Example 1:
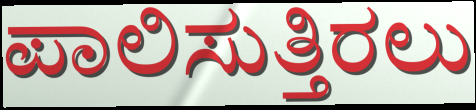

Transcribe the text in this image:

ಪಾಲಿಸುತ್ತಿರಲು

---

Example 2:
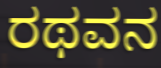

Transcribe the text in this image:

ರಥವನ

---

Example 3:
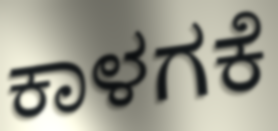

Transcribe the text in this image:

ಕಾಳಗಕೆ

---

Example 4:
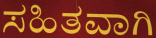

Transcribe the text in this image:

ಸಹಿತವಾಗಿ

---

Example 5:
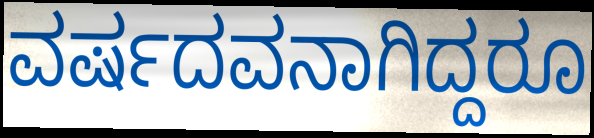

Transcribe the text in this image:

ವರ್ಷದವನಾಗಿದ್ದರೂ